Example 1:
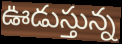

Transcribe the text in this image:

ఊడుస్తున్న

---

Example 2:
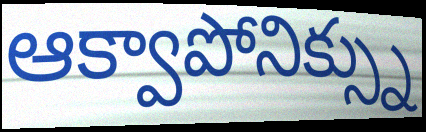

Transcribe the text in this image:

ఆక్వాపోనిక్స్ను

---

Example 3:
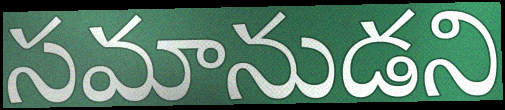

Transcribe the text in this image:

సమానుడని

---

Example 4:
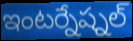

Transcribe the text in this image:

ఇంటర్నేష్నల్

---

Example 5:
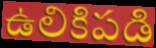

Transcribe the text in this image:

ఉలికిపడి